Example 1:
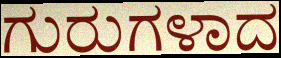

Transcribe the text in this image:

ಗುರುಗಳಾದ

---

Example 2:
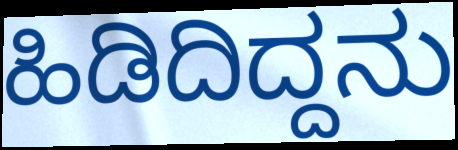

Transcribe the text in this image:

ಹಿಡಿದಿದ್ದನು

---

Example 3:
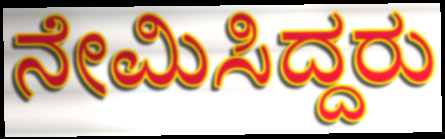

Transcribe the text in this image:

ನೇಮಿಸಿದ್ದರು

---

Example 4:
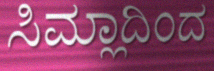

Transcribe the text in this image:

ಸಿಮ್ಲಾದಿಂದ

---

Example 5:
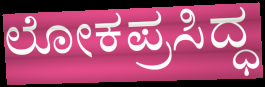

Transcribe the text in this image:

ಲೋಕಪ್ರಸಿದ್ಧ